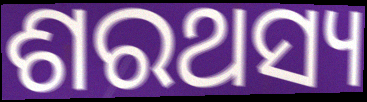
ଶରଥସ୍ୟ